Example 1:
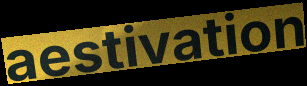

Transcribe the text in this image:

aestivation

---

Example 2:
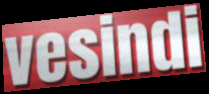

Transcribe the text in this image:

vesindi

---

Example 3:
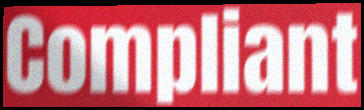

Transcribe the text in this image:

Compliant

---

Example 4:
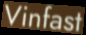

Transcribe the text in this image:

Vinfast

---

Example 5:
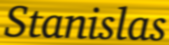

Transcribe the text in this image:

Stanislas